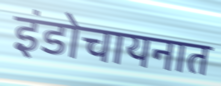
इंडोचायनात